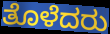
ತೊಳೆದರು